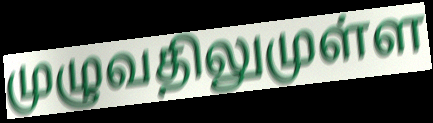
முழுவதிலுமுள்ள